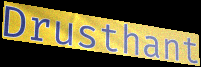
Drusthant